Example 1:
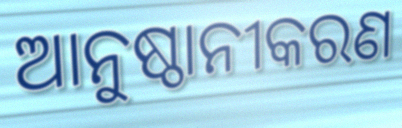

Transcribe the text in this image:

ଆନୁଷ୍ଠାନୀକରଣ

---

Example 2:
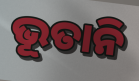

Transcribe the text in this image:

ଭୂତାନି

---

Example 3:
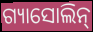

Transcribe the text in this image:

ଗ୍ୟାସୋଲିନ୍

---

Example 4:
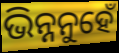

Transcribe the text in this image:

ଭିନ୍ନନୁହେଁ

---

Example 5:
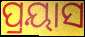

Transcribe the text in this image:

ପ୍ରୟାସ